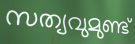
സത്യവുമുണ്ട്